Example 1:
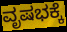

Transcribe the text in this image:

ವೃಷಭಕ್ಕೆ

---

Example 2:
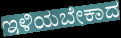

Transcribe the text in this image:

ಇಳಿಯಬೇಕಾದ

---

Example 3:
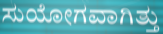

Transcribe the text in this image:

ಸುಯೋಗವಾಗಿತ್ತು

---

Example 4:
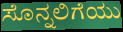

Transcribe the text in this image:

ಸೊನ್ನಲಿಗೆಯು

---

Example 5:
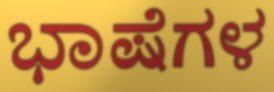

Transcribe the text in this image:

ಭಾಷೆಗಳ